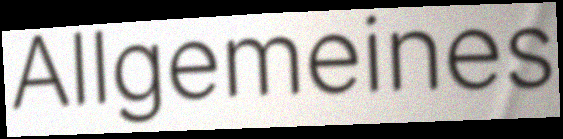
Allgemeines